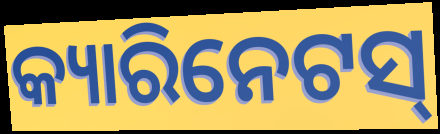
କ୍ୟାରିନେଟସ୍